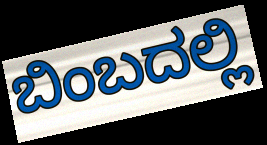
ಬಿಂಬದಲ್ಲಿ